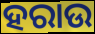
ହରାଉ